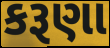
કરૂણા